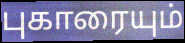
புகாரையும்